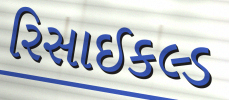
રિસાઈકલ્ડ